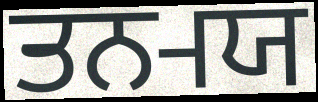
ਤਨ੍ਮਯ